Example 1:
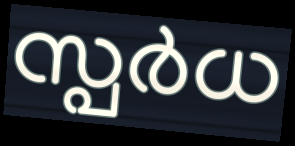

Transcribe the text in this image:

സ്പർധ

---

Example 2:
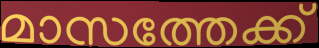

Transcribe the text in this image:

മാസത്തേക്ക്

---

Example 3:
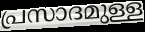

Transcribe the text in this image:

പ്രസാദമുള്ള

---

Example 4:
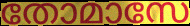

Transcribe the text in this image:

തോമാസേ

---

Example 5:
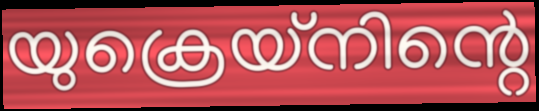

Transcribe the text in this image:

യുക്രെയ്നിന്റെ